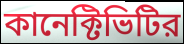
কানেক্টিভিটির